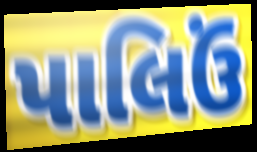
પાલિઉં